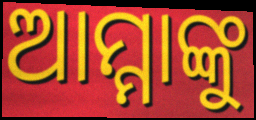
ଆମ୍ମାଙ୍କୁ